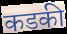
कडकी